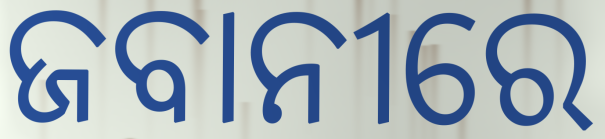
ଜବାନୀରେ